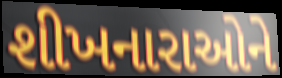
શીખનારાઓને